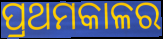
ପ୍ରଥମକାଳର